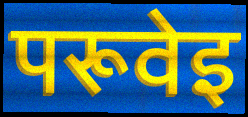
परूवेइ